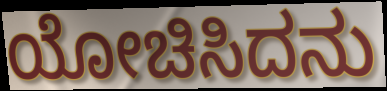
ಯೋಚಿಸಿದನು